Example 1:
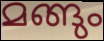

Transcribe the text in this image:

മങ്ങും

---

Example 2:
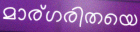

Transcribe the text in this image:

മാര്ഗരിതയെ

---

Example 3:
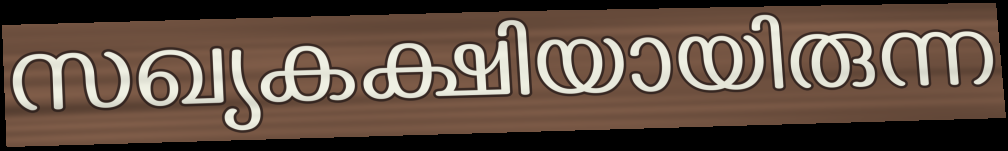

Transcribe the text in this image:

സഖ്യകക്ഷിയായിരുന്ന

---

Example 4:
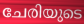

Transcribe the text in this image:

ചേരിയുടെ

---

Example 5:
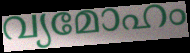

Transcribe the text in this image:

വ്യമോഹം